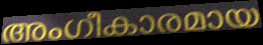
അംഗീകാരമായ